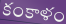
కంకాళం